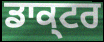
ਡਾਕ੍ਟਰ